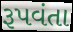
રૂપવંતા